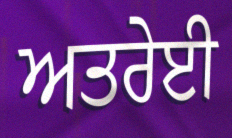
ਅਤਰੇਈ